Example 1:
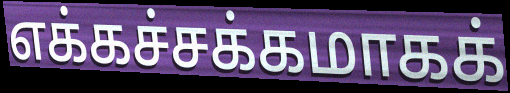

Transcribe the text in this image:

எக்கச்சக்கமாகக்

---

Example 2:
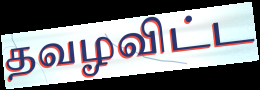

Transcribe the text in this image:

தவழவிட்ட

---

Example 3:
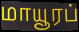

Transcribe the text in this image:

மாயூரப்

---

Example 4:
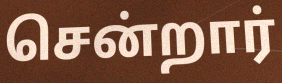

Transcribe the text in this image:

சென்றார்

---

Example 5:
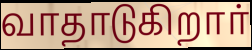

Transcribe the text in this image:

வாதாடுகிறார்